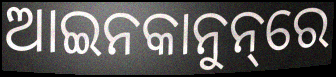
ଆଇନକାନୁନ୍‌ରେ